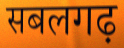
सबलगढ़